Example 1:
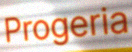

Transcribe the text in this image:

Progeria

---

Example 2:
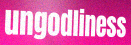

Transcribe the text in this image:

ungodliness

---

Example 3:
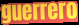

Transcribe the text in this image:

guerrero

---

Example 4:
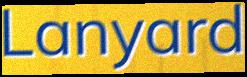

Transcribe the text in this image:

Lanyard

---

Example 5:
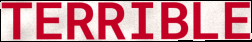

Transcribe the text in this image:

TERRIBLE